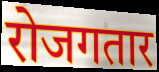
रोजगतार